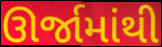
ઊર્જામાંથી